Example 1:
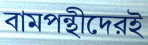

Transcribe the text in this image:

বামপন্থীদেরই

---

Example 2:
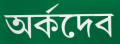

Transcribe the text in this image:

অর্কদেব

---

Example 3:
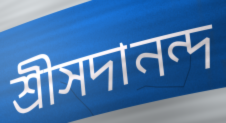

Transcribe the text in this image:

শ্রীসদানন্দ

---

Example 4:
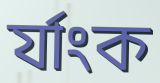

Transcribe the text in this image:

র্যাংক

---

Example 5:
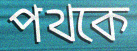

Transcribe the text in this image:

পথকে